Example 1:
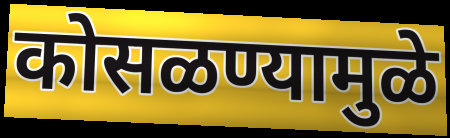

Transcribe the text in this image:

कोसळण्यामुळे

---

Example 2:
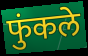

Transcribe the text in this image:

फुंकले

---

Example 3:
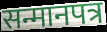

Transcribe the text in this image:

सन्मानपत्र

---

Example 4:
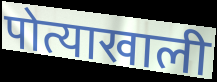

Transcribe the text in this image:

पोत्याखाली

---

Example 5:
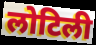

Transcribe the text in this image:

लोटिली